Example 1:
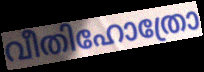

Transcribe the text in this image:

വീതിഹോത്രോ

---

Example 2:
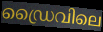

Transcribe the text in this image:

ഡ്രൈവിലെ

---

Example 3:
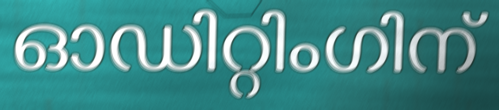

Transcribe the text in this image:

ഓഡിറ്റിംഗിന്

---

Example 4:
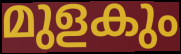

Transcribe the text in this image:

മുളകും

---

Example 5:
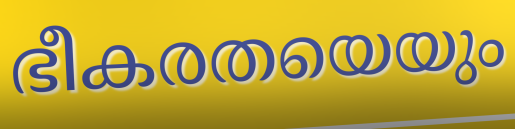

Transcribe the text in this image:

ഭീകരതയെയും